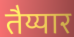
तैय्यार